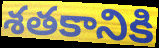
శతకానికి